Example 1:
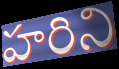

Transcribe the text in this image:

హరిని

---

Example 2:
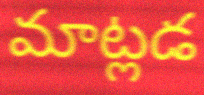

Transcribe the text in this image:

మాట్లడ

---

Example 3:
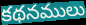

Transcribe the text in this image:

కథనములు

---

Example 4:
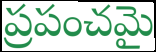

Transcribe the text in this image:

ప్రపంచమై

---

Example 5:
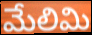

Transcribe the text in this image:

మేలిమి